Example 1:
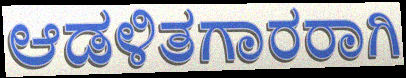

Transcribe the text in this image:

ಆಡಳಿತಗಾರರಾಗಿ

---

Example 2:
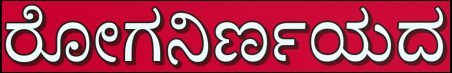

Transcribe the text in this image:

ರೋಗನಿರ್ಣಯದ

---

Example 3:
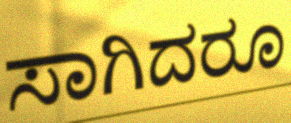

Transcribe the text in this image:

ಸಾಗಿದರೂ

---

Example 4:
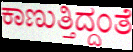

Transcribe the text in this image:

ಕಾಣುತ್ತಿದ್ದಂತೆ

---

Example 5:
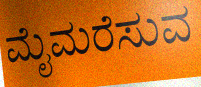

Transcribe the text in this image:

ಮೈಮರೆಸುವ